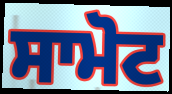
ਸਾਮੋਟ